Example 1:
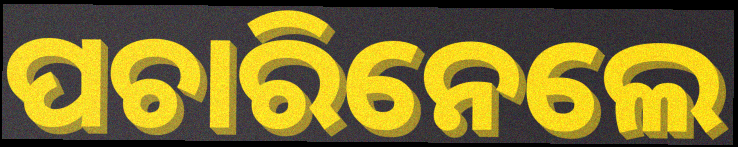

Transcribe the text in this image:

ପଚାରିନେଲେ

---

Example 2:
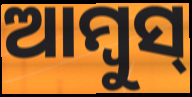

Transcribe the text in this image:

ଆମ୍ବୁସ୍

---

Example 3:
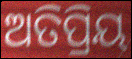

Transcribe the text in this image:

ଅତିପ୍ରିୟ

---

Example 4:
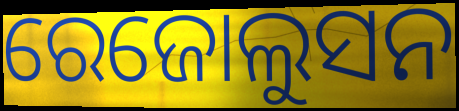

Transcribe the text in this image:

ରେଜୋଲୁସନ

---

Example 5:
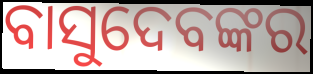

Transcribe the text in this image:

ବାସୁଦେବଙ୍କର